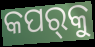
କପର୍‌କୁ